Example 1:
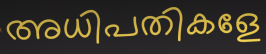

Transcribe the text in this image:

അധിപതികളേ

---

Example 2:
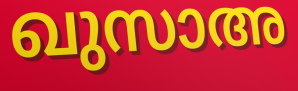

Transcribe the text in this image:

ഖുസാഅ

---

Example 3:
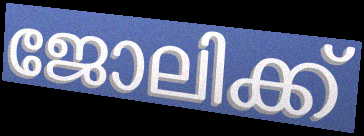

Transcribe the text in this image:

ജോലിക്ക്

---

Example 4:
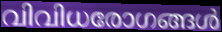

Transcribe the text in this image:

വിവിധരോഗങ്ങൾ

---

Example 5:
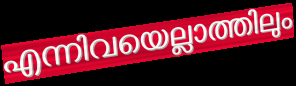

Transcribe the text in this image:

എന്നിവയെല്ലാത്തിലും